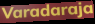
Varadaraja